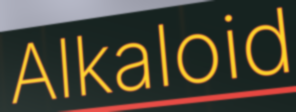
Alkaloid